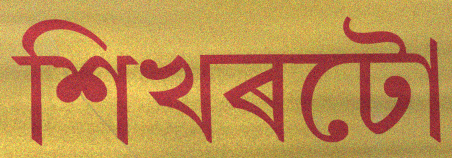
শিখৰটো